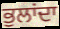
ਭੁਲਾਂਦਾ